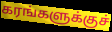
கரங்களுக்குச்